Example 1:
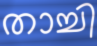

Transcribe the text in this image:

താച്ചി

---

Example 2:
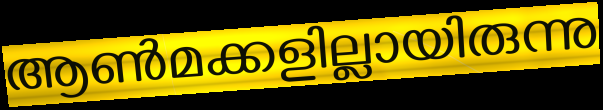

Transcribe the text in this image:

ആൺമക്കളില്ലായിരുന്നു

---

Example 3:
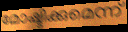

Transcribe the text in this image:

മോഷ്ടിക്കുമെന്ന്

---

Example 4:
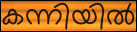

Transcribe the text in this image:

കന്നിയിൽ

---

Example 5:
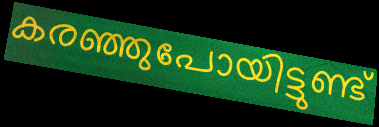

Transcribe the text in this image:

കരഞ്ഞുപോയിട്ടുണ്ട്